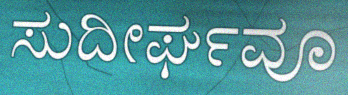
ಸುದೀರ್ಘವೂ